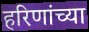
हरिणांच्या